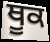
ਥੂਕ